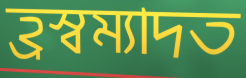
হ্ৰস্বম্যাদত